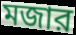
মজার